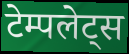
टेम्पलेट्स